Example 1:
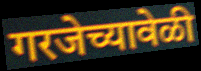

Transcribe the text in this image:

गरजेच्यावेळी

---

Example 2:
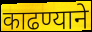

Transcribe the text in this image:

काढण्याने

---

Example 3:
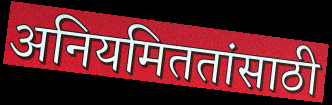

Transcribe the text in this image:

अनियमिततांसाठी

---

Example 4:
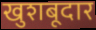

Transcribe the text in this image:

खुशबूदार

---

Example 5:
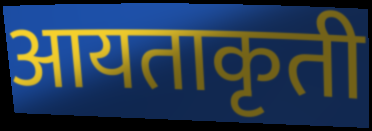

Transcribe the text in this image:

आयताकृती